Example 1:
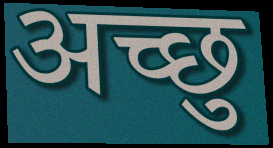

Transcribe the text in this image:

अच्छु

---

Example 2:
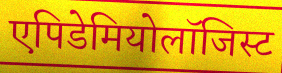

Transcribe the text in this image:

एपिडेमियोलॉजिस्ट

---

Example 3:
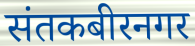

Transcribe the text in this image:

संतकबीरनगर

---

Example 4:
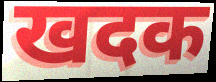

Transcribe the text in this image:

खदक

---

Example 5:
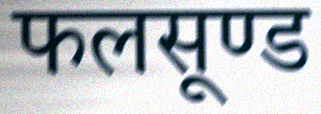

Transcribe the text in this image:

फलसूण्ड